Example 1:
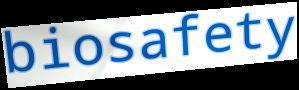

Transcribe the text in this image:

biosafety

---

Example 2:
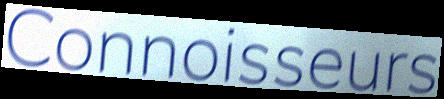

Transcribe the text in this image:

Connoisseurs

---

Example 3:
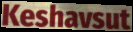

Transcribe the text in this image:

Keshavsut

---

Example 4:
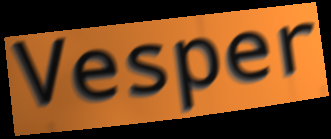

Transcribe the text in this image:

Vesper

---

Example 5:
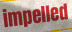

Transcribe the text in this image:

impelled